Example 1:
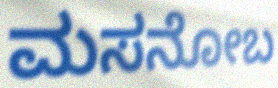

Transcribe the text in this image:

ಮಸನೋಬ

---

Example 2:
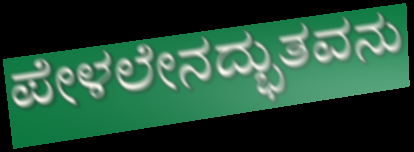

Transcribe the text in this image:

ಪೇಳಲೇನದ್ಭುತವನು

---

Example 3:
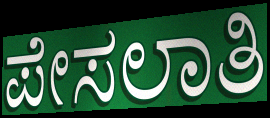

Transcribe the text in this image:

ಪೇಸಲಾತಿ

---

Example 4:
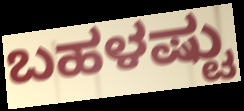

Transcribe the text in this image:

ಬಹಳಷ್ಟು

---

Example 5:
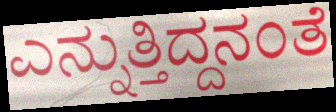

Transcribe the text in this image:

ಎನ್ನುತ್ತಿದ್ದನಂತೆ